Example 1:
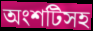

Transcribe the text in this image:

অংশটিসহ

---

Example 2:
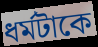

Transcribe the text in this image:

ধর্মটাকে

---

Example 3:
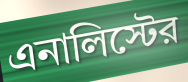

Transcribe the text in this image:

এনালিস্টের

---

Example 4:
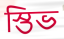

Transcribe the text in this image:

স্তিভ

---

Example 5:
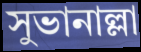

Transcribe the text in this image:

সুভানাল্লা